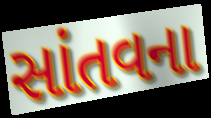
સાંતવના